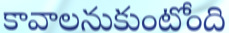
కావాలనుకుంటోంది